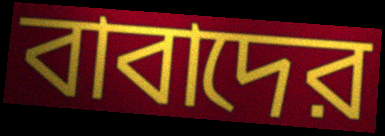
বাবাদের